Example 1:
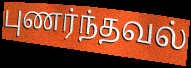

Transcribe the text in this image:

புணர்ந்தவல்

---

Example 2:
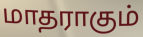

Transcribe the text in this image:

மாதராகும்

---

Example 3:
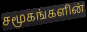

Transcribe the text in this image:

சமூகங்களின்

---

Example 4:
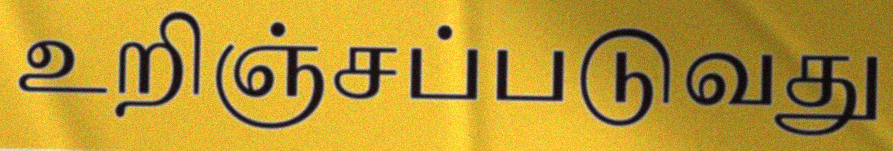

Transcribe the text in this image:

உறிஞ்சப்படுவது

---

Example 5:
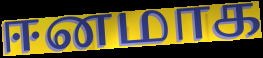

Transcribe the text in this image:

ஈனமாக